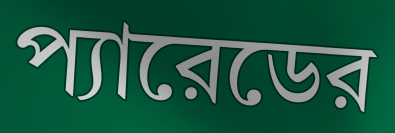
প্যারেডের